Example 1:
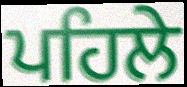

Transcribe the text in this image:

ਪਹਿਲੇ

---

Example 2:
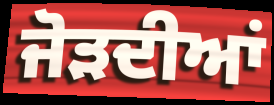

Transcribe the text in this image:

ਜੋੜਦੀਆਂ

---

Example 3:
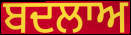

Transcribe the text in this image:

ਬਦਲਾਅ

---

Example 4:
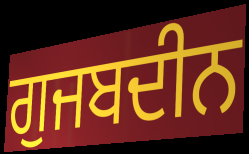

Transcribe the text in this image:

ਗੁਜਬਦੀਨ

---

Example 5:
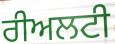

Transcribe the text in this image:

ਰੀਅਲਟੀ